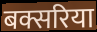
बक्सरिया